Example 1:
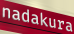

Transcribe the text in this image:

nadakura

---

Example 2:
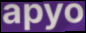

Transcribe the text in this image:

apyo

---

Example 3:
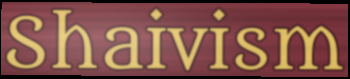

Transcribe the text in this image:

Shaivism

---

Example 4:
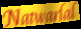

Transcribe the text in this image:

Natwarlal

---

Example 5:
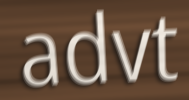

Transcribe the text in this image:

advt